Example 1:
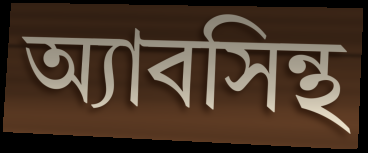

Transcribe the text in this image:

অ্যাবসিন্থ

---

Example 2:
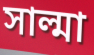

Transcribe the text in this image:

সাল্মা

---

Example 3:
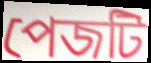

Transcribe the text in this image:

পেজটি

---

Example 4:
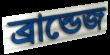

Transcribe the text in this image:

ব্রান্ডেজ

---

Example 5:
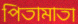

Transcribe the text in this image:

পিতামাতা